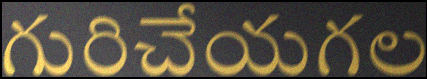
గురిచేయగల